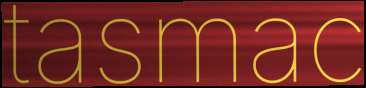
tasmac